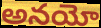
అనయో